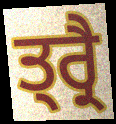
ਤ੍ਰ੍ਰੈ